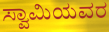
ಸ್ವಾಮಿಯವರ